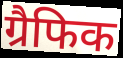
ग्रैफिक